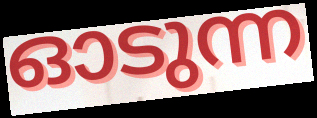
ഓടുന്ന